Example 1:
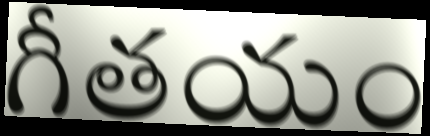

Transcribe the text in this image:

గీతయం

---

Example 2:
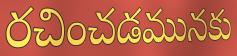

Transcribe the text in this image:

రచించడమునకు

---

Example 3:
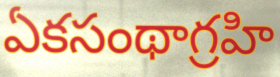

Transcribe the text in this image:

ఏకసంథాగ్రహి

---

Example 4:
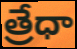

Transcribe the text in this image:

త్రేధా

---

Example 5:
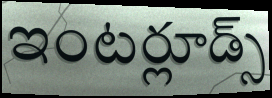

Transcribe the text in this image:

ఇంటర్లూడ్స్